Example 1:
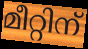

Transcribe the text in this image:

മീറ്റിന്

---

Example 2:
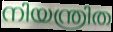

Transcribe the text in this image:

നിയന്ത്രിത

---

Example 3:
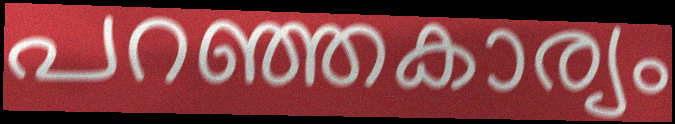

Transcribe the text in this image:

പറഞ്ഞകാര്യം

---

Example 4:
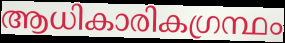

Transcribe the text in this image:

ആധികാരികഗ്രന്ഥം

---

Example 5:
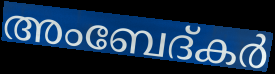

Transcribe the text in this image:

അംബേദ്കർ